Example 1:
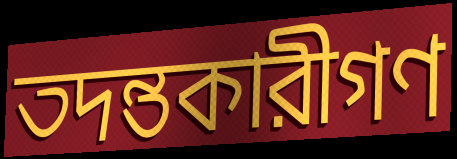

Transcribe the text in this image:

তদন্তকারীগণ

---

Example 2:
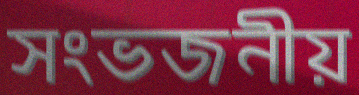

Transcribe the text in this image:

সংভজনীয়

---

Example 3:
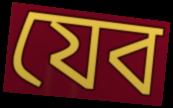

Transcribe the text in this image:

যেব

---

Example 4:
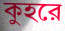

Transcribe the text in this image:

কুহরে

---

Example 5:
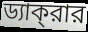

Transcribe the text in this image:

ড্যাক্‌রার